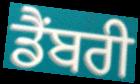
ਡੈਂਬਰੀ